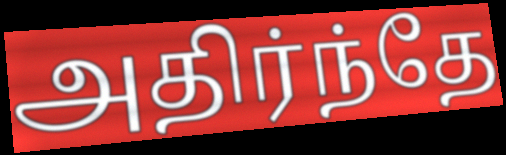
அதிர்ந்தே